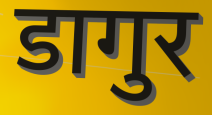
डागुर